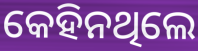
କେହିନଥିଲେ